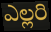
ఎల్లరి